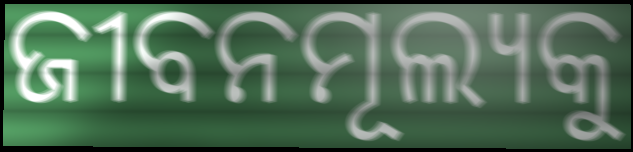
ଜୀବନମୂଲ୍ୟକୁ